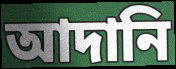
আদানি